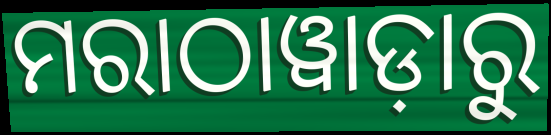
ମରାଠାୱାଡ଼ାରୁ